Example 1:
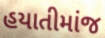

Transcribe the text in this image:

હયાતીમાંજ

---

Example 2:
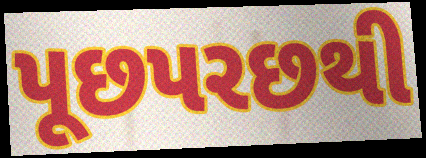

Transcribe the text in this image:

પૂછપરછથી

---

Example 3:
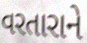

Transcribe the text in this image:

વરતારાને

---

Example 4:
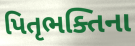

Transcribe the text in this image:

પિતૃભક્તિના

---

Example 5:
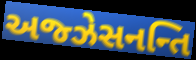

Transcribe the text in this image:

અજ્ઝેસનન્તિ